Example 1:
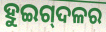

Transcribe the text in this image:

ହୁଇଗ୍‌ଦଳର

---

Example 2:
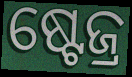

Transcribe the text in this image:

ଷ୍ଟେଜ୍ର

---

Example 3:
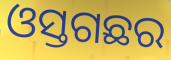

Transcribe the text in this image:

ଓସ୍ତଗଛର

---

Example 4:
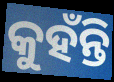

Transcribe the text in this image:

କୁହଁନ୍ତି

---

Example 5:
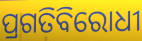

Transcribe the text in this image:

ପ୍ରଗତିବିରୋଧୀ